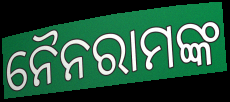
ନୈନରାମଙ୍କ